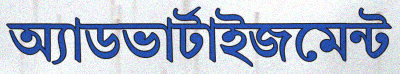
অ্যাডভার্টাইজমেন্ট